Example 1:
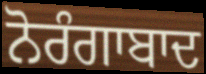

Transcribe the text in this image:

ਨੋਰੰਗਾਬਾਦ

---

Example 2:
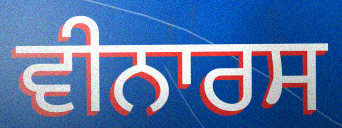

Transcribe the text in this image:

ਵੀਨਾਰਸ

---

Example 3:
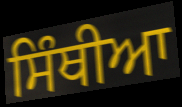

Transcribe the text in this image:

ਸਿੰਥੀਆ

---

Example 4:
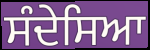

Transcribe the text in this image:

ਸੰਦੇਸਿਆ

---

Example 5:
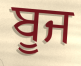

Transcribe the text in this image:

ਬੂਜ